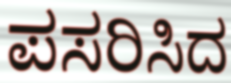
ಪಸರಿಸಿದ